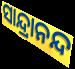
ସାନ୍ଦ୍ରାନନ୍ଦ